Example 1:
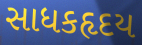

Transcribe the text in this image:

સાધકહૃદય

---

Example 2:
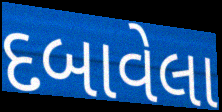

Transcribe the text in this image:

દબાવેલા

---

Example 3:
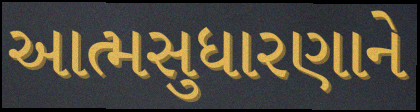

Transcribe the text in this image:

આત્મસુધારણાને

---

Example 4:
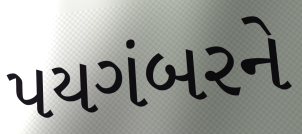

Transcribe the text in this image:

પયગંબરને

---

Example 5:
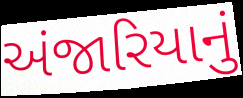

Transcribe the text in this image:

અંજારિયાનું